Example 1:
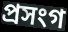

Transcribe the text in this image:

প্ৰসংগ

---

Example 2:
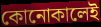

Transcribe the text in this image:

কোনোকালেই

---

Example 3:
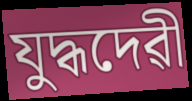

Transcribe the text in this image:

যুদ্ধদেৱী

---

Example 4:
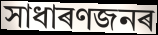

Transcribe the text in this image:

সাধাৰণজনৰ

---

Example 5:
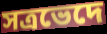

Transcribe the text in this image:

সত্ৰভেদে